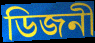
ডিজনী